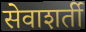
सेवाशर्ती